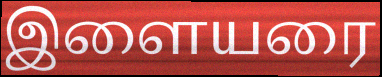
இளையரை